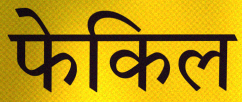
फेकिल